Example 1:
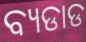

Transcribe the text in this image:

ବ୍ୟଡାଡ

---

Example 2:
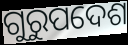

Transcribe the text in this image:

ଗୁରୁପଦେଶ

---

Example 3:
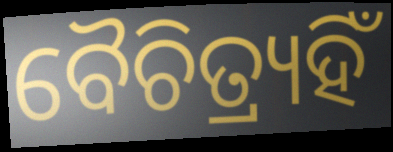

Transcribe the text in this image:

ବୈଚିତ୍ର୍ୟହିଁ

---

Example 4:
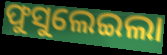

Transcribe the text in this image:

ଫୁସୁଲେଇଲା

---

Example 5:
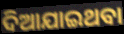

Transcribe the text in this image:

ଦିଆଯାଇଥବା